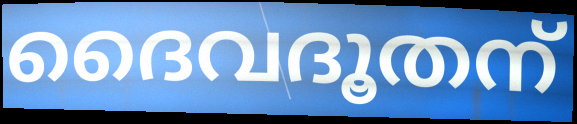
ദൈവദൂതന്